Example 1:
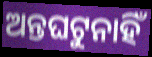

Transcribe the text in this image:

ଅନ୍ତଘଟୁନାହିଁ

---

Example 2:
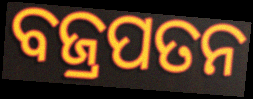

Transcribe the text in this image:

ବଜ୍ରପତନ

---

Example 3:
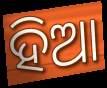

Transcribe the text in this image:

ହିଆ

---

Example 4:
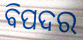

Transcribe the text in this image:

ବିପଦର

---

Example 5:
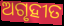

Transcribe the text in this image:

ଅଗୃହୀତ